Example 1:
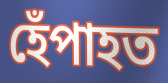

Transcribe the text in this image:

হেঁপাহত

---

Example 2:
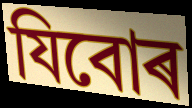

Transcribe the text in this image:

যিবোৰ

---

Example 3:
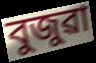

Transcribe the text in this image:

বুজুৱা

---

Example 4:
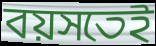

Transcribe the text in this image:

বয়সতেই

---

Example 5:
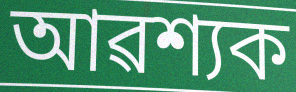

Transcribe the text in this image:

আৱশ্যক